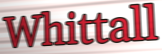
Whittall